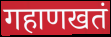
गहाणखतं